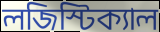
লজিস্টিক্যাল